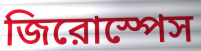
জিরোস্পেস